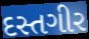
દસ્તગીર